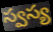
స్వస్య